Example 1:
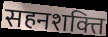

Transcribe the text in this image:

सहनशक्ति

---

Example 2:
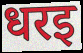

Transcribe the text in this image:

धरइ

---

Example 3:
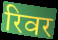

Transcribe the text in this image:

रिवर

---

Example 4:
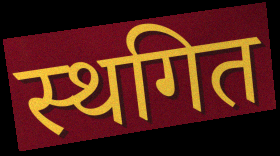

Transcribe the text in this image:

स्थगित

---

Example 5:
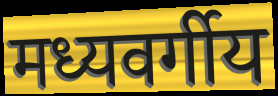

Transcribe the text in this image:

मध्यवर्गीय